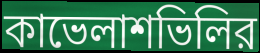
কাভেলাশভিলির